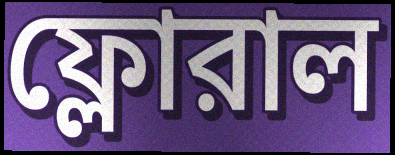
ফ্লোরাল